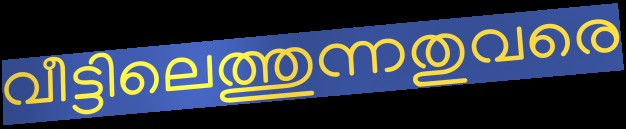
വീട്ടിലെത്തുന്നതുവരെ